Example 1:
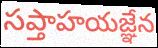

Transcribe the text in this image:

సప్తాహయజ్ఞేన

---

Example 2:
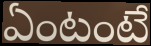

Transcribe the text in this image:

ఏంటంటే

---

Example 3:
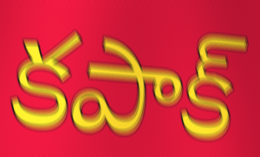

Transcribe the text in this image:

కపాక్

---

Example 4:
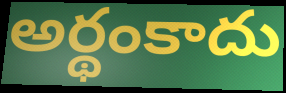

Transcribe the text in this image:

అర్థంకాదు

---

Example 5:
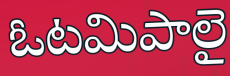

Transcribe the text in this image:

ఓటమిపాలై